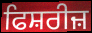
ਫਿਸ਼ਰੀਜ਼